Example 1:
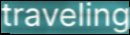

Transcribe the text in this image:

traveling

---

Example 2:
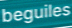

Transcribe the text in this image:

beguiles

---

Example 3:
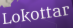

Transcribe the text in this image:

Lokottar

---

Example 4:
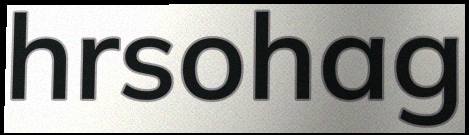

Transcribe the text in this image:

hrsohag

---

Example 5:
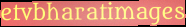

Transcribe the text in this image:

etvbharatimages